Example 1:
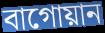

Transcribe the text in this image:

বাগোয়ান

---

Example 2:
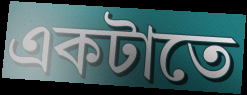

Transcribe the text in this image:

একটাতে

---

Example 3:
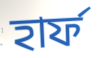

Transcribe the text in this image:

হার্ফ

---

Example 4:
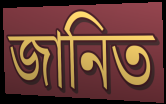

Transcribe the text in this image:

জানিত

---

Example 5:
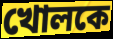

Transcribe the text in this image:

খোলকে